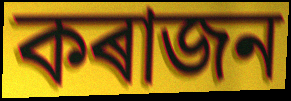
কৰাজন